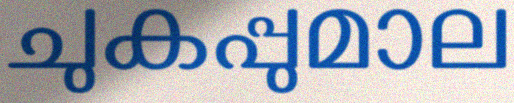
ചുകപ്പുമാല